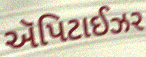
ઍપિટાઈઝર